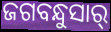
ଜଗବନ୍ଧୁସାର୍